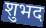
शुभद